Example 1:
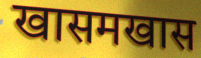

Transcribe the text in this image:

खासमखास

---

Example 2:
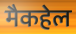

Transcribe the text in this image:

मैकहेल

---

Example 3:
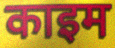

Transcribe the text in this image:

काइम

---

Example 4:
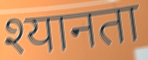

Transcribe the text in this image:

श्यानता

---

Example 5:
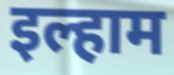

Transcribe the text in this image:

इल्हाम